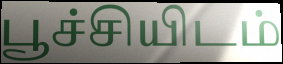
பூச்சியிடம்